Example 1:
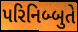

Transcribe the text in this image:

પરિનિબ્બુતે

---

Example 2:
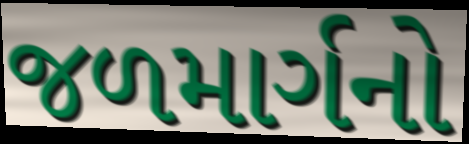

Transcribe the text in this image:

જળમાર્ગનો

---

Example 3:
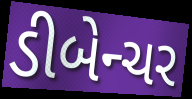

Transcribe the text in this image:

ડીબેન્ચર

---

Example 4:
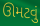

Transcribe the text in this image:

ઊમટવું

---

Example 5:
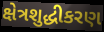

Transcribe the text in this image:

ક્ષેત્રશુદ્ધીકરણ